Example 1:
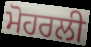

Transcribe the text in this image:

ਮੋਹਰਲੀ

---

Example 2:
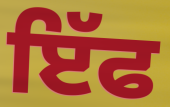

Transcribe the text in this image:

ਇੱਫ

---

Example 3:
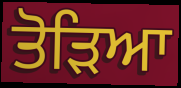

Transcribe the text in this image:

ਤੋਡ਼ਿਆ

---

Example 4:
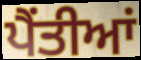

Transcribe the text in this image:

ਪੈਂਤੀਆਂ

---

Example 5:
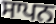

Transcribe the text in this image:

ਸਾਪਨ